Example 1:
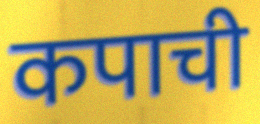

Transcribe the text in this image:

कपाची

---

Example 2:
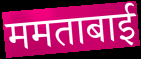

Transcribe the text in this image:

ममताबाई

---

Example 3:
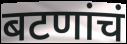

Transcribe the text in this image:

बटणांचं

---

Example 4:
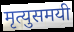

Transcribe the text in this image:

मृत्युसमयी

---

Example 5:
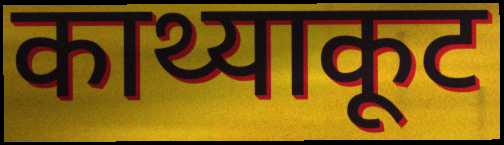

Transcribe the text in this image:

काथ्याकूट